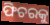
ଫିଚରକୁ